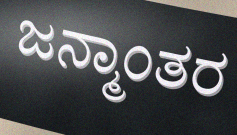
ಜನ್ಮಾಂತರ